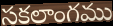
సకలాంగము